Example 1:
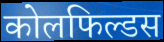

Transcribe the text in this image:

कोलफिल्डस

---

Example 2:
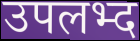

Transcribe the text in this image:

उपलभ्द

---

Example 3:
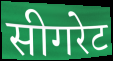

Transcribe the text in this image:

सीगरेट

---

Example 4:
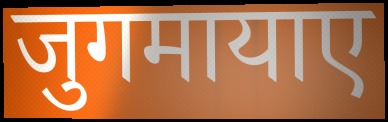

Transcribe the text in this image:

जुगमायाए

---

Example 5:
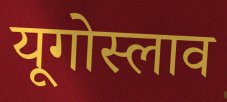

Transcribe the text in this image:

यूगोस्लाव